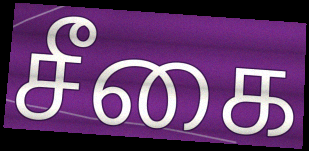
சீகை